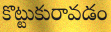
కొట్టుకురావడం